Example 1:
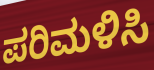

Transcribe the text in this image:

ಪರಿಮಳಿಸಿ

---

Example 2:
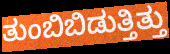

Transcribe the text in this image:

ತುಂಬಿಬಿಡುತ್ತಿತ್ತು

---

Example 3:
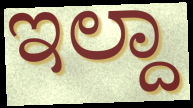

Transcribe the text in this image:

ಇಲ್ದಾ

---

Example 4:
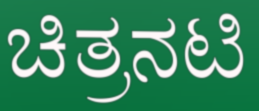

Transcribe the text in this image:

ಚಿತ್ರನಟಿ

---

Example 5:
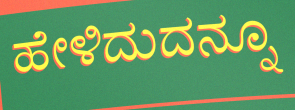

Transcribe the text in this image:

ಹೇಳಿದುದನ್ನೂ